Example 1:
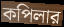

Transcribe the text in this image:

কপিলার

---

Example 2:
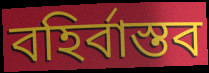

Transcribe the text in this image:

বহির্বাস্তব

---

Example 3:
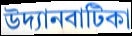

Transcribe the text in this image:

উদ্যানবাটিকা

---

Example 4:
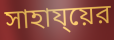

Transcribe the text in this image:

সাহায্য়ের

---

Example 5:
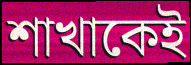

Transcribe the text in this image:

শাখাকেই